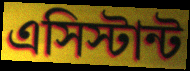
এসিস্টান্ট